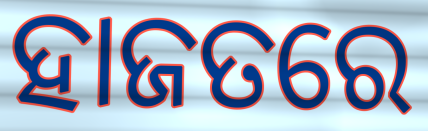
ହାଜତରେ